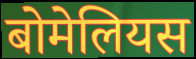
बोमेलियस